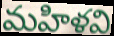
మహిళవి